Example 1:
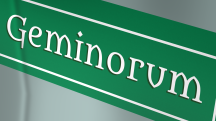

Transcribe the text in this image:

Geminorum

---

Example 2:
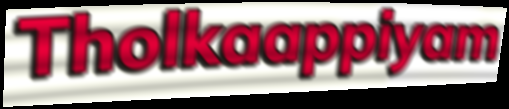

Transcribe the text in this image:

Tholkaappiyam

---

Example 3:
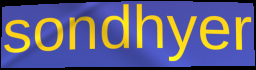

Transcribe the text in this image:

sondhyer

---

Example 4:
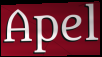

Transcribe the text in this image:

Apel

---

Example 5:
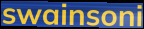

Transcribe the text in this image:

swainsoni